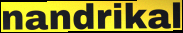
nandrikal